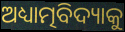
ଅଧ୍ୟାତ୍ମବିଦ୍ୟାକୁ